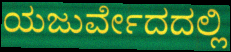
ಯಜುರ್ವೇದದಲ್ಲಿ